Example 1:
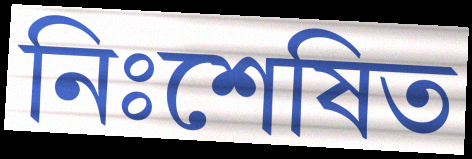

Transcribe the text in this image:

নিঃশেষিত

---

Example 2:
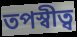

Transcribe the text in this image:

তপস্বীত্ব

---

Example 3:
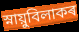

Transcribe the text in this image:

স্নায়ুবিলাকৰ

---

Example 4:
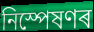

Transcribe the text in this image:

নিস্পেষণৰ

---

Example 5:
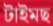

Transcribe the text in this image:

টাইমছ